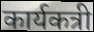
कार्यकत्री